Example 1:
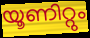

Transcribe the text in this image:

യൂണിറ്റും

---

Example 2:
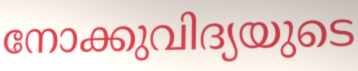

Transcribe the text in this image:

നോക്കുവിദ്യയുടെ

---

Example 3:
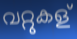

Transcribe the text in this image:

വറ്റുകള്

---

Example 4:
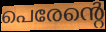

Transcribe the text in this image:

പെരേന്റെ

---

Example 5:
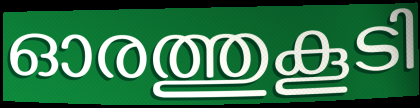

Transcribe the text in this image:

ഓരത്തുകൂടി